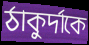
ঠাকুর্দাকে